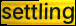
settling